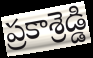
ప్రకాశ్రెడ్డి